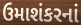
ઉમાશંકરનાં